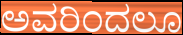
ಅವರಿಂದಲೂ